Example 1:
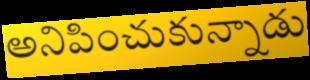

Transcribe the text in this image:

అనిపించుకున్నాడు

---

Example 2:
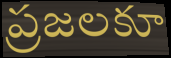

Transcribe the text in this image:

ప్రజలకూ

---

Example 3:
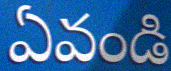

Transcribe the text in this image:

ఏవండి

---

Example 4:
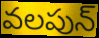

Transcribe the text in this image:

వలపున్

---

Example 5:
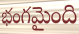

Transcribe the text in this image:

భంగమైంది